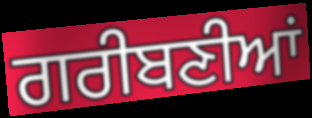
ਗਰੀਬਣੀਆਂ